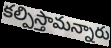
కల్పిస్తామన్నారు